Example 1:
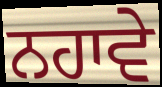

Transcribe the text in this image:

ਨਹਾਵੇ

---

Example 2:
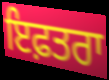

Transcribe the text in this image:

ਇਫ਼ਤਰਾ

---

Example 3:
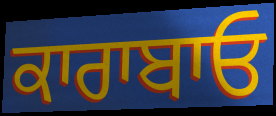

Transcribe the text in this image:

ਕਾਰਾਬਾਓ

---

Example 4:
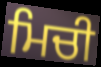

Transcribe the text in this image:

ਮਿਚੀ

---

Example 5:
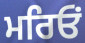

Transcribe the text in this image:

ਮਰਿਓਂ